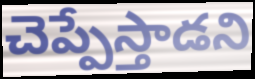
చెప్పేస్తాడని